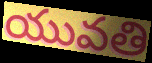
యువతి